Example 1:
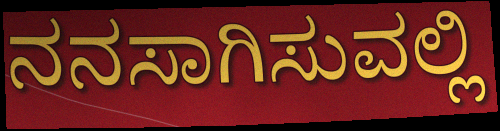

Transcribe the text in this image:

ನನಸಾಗಿಸುವಲ್ಲಿ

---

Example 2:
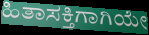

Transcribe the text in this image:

ಹಿತಾಸಕ್ತಿಗಾಗಿಯೇ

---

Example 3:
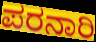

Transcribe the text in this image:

ಪರನಾರಿ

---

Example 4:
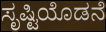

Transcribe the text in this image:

ಸೃಷ್ಟಿಯೊಡನೆ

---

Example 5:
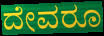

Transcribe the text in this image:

ದೇವರೂ